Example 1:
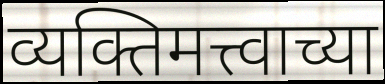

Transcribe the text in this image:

व्यक्तिमत्त्वाच्या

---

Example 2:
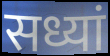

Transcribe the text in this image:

सध्यां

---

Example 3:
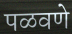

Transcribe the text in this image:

पळवणे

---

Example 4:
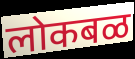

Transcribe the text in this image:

लोकबळ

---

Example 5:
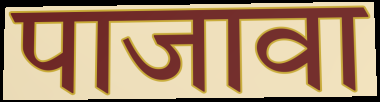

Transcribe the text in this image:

पाजावा